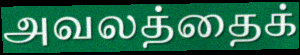
அவலத்தைக்